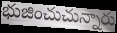
భుజించుచున్నారు